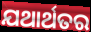
ଯଥାର୍ଥତର